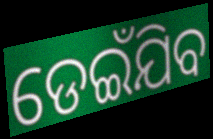
ଡେଇଁଯିବ